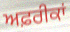
ਅਫ਼ਰੀਕਾਂ